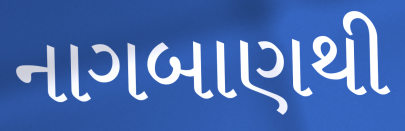
નાગબાણથી